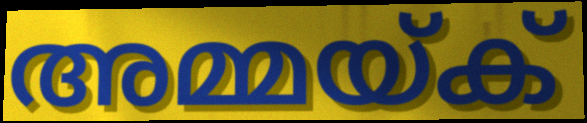
അമ്മയ്ക്